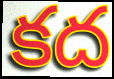
కద